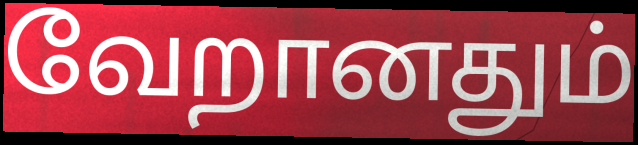
வேறானதும்